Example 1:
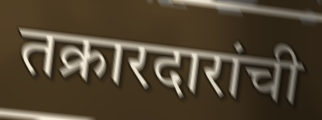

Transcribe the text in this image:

तक्रारदारांची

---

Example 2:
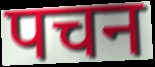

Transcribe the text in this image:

पचन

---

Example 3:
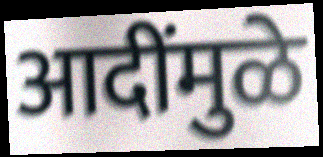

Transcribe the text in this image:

आदींमुळे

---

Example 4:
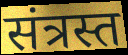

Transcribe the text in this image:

संत्रस्त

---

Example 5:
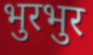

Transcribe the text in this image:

भुरभुर